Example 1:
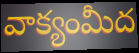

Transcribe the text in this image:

వాక్యంమీద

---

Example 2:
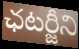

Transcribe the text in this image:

ఛటర్జీని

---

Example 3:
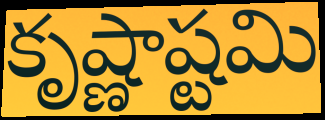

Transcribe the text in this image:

కృష్ణాష్టమి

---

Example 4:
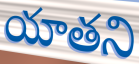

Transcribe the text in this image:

యాతని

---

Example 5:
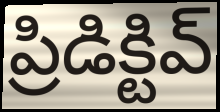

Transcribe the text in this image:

ప్రిడిక్టివ్